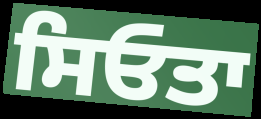
ਸਿਓਤਾ